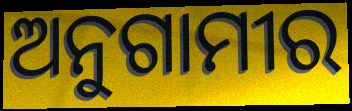
ଅନୁଗାମୀର